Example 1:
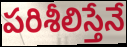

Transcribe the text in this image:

పరిశీలిస్తేనే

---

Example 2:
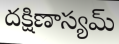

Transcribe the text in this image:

దక్షిణాస్యమ్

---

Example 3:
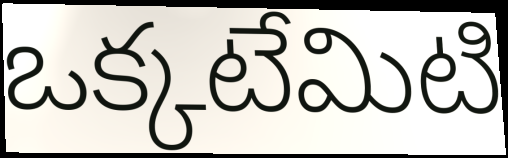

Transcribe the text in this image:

ఒక్కటేమిటి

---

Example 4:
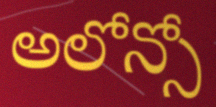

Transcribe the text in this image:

అలోన్సో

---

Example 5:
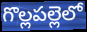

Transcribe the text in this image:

గొల్లపల్లెలో